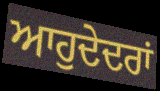
ਆਹੁਦੇਦਰਾਂ